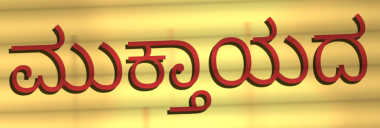
ಮುಕ್ತಾಯದ